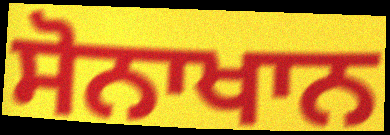
ਸੋਨਾਖਾਨ